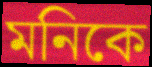
মনিকে